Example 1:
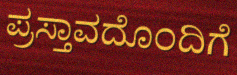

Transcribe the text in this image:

ಪ್ರಸ್ತಾವದೊಂದಿಗೆ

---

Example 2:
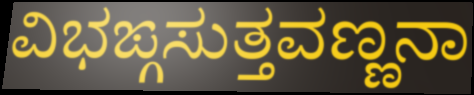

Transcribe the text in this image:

ವಿಭಙ್ಗಸುತ್ತವಣ್ಣನಾ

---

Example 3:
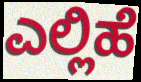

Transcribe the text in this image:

ಎಲ್ಲಿಹೆ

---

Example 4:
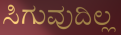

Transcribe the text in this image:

ಸಿಗುವುದಿಲ್ಲ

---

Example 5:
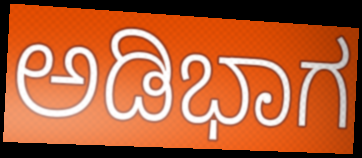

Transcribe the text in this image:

ಅಡಿಭಾಗ